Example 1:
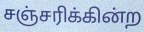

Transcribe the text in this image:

சஞ்சரிக்கின்ற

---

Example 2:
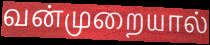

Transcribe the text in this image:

வன்முறையால்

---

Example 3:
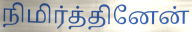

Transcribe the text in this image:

நிமிர்த்தினேன்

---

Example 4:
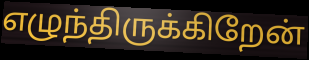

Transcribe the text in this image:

எழுந்திருக்கிறேன்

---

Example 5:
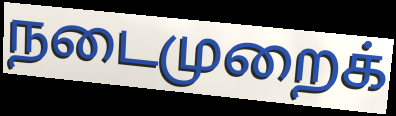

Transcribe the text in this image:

நடைமுறைக்